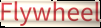
Flywheel